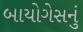
બાયોગેસનું